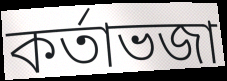
কর্তাভজা